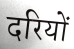
दरियों